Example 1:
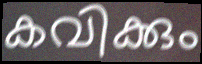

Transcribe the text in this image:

കവിക്കും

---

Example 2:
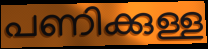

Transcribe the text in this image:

പണിക്കുള്ള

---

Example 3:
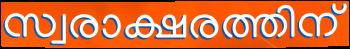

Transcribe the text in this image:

സ്വരാക്ഷരത്തിന്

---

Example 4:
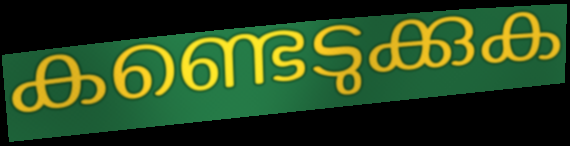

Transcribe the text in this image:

കണ്ടെടുക്കുക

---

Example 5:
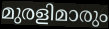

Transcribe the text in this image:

മുരളിമാരും